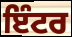
ਇੰਟਰ